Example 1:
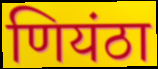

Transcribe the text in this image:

णियंठा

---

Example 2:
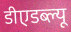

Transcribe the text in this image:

डीएडब्ल्यू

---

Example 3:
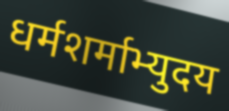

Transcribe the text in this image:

धर्मशर्माभ्युदय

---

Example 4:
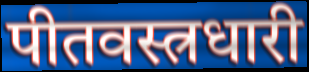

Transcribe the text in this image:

पीतवस्त्रधारी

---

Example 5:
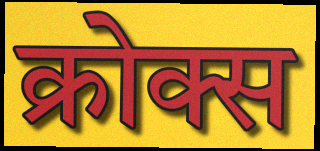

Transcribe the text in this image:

क्रोक्स